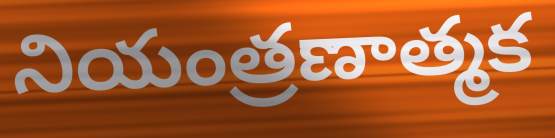
నియంత్రణాత్మక